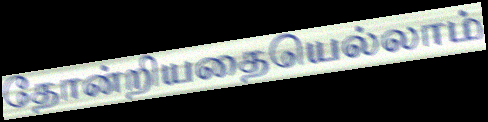
தோன்றியதையெல்லாம்